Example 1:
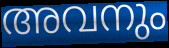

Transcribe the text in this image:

അവനും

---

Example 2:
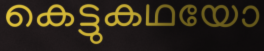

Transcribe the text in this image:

കെട്ടുകഥയോ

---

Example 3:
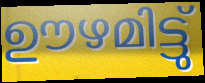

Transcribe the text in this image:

ഊഴമിട്ടു്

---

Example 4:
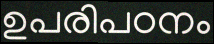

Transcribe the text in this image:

ഉപരിപഠനം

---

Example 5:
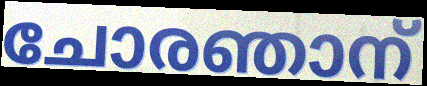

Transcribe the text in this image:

ചോരഞാന്